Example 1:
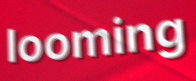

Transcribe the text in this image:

looming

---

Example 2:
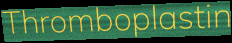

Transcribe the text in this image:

Thromboplastin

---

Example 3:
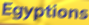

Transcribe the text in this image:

Egyptions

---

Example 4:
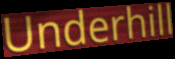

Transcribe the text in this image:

Underhill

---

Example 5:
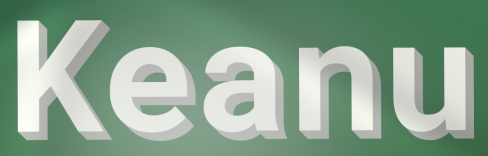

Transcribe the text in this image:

Keanu